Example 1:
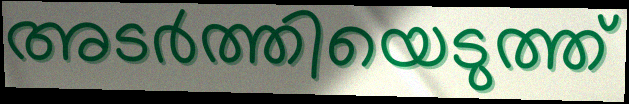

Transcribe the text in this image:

അടർത്തിയെടുത്ത്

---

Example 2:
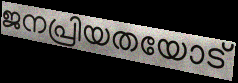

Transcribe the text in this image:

ജനപ്രിയതയോട്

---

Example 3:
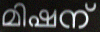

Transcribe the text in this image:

മിഷന്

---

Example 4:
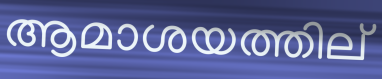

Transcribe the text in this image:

ആമാശയത്തില്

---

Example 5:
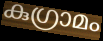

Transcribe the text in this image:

കുഗ്രാമം